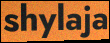
shylaja